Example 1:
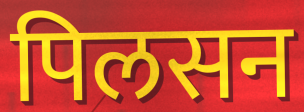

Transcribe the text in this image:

पिलसन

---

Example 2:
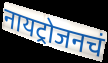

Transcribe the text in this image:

नायट्रोजनचं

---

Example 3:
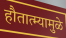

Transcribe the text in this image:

हौतात्म्यामुळे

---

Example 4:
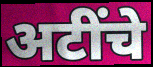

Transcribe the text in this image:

अटींचे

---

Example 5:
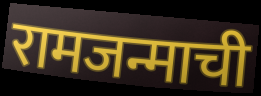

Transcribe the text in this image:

रामजन्माची